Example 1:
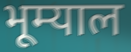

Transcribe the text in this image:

भूम्याल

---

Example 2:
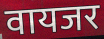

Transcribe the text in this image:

वायजर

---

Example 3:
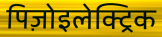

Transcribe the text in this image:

पिज़ोइलेक्ट्रिक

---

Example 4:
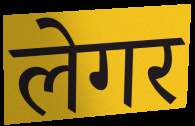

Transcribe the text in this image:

लेगर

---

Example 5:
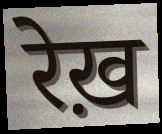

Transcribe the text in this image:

रेख़